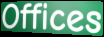
Offices